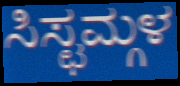
ಸಿಸ್ಟಮ್ಗಳ